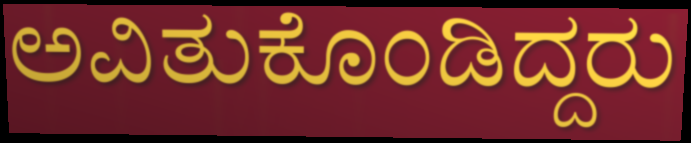
ಅವಿತುಕೊಂಡಿದ್ದರು